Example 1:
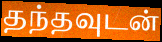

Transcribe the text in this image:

தந்தவுடன்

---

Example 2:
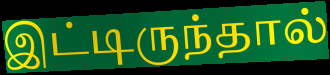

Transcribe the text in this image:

இட்டிருந்தால்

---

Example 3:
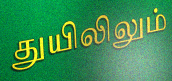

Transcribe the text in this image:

துயிலிலும்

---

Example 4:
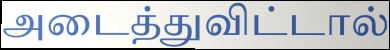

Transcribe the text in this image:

அடைத்துவிட்டால்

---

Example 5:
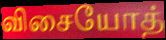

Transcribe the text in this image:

விசையோத்